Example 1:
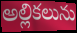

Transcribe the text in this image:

అల్లికలును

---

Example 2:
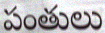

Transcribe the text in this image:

పంతులు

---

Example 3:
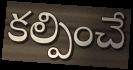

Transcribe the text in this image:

కల్పించే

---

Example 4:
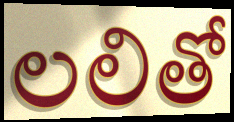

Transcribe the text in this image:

లలితో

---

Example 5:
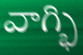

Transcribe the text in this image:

వాగ్భి